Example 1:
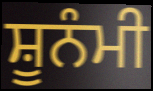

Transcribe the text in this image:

ਸ਼ੂਨੰਮੀ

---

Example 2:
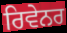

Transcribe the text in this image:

ਰਿਵੇਨਰ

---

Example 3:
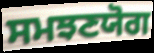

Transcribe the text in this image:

ਸਮਝਣਯੋਗ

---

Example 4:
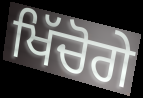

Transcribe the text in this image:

ਖਿੱਚੋਗੇ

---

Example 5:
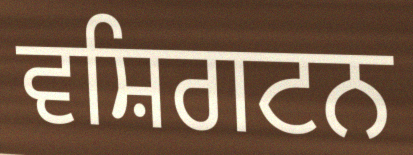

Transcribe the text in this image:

ਵਸ਼ਿਗਟਨ